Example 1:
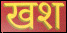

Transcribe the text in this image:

खश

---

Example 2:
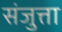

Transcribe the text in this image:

संजुत्ता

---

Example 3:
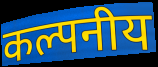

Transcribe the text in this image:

कल्पनीय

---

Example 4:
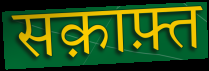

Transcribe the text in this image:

सक़ाफ़्त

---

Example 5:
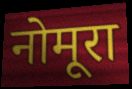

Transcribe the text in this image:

नोमूरा